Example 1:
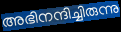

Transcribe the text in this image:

അഭിനന്ദിച്ചിരുന്നു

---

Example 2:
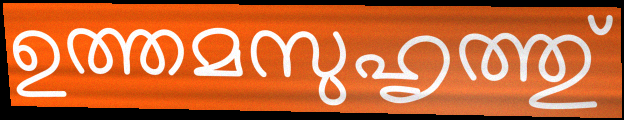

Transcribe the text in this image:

ഉത്തമസുഹൃത്തു്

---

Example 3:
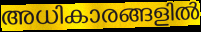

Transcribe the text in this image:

അധികാരങ്ങളിൽ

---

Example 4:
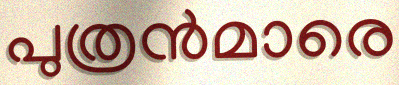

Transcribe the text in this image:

പുത്രൻമാരെ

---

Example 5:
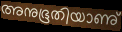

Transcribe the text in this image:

അനുഭൂതിയാണു്